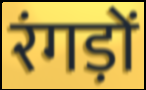
रंगड़ों